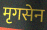
मृगसेन